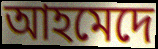
আহমেদে